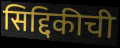
सिद्दिकीची